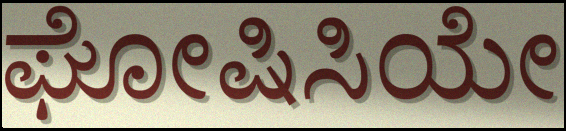
ಘೋಷಿಸಿಯೇ